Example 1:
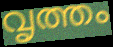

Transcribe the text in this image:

വൃത്തം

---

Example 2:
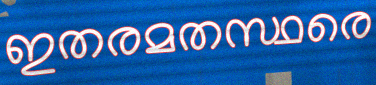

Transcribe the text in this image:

ഇതരമതസ്ഥരെ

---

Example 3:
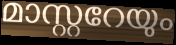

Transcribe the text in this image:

മാസ്റ്ററേയും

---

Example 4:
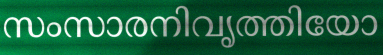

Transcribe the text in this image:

സംസാരനിവൃത്തിയോ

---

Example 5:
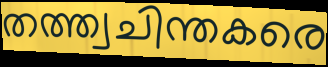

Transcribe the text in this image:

തത്ത്വചിന്തകരെ